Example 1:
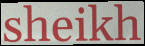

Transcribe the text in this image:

sheikh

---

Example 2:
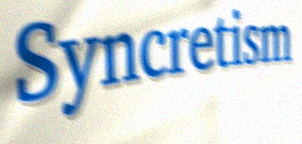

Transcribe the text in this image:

Syncretism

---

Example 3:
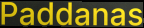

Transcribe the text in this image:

Paddanas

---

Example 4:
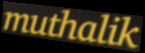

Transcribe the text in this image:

muthalik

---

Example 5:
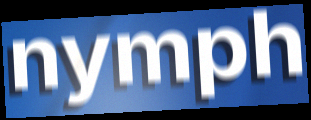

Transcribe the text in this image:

nymph